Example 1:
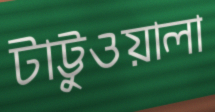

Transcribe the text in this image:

টাট্টুওয়ালা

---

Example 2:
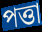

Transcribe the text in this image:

পত্তা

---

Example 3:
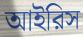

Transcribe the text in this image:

আইরিস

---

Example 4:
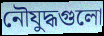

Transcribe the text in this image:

নৌযুদ্ধগুলো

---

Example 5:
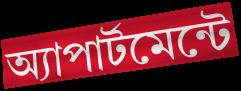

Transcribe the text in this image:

অ্যাপার্টমেন্টে